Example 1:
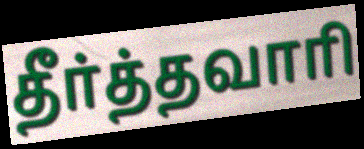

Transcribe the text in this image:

தீர்த்தவாரி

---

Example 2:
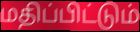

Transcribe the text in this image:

மதிப்பிட்டும்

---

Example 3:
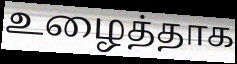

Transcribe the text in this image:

உழைத்தாக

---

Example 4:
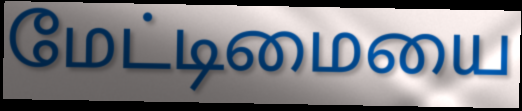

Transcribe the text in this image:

மேட்டிமையை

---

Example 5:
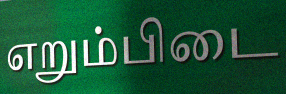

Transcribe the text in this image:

எறும்பிடை